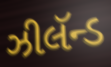
ઝીલૅન્ડ